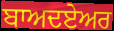
ਬਾਅਦਏਅਰ